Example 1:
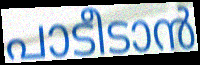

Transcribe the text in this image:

പാടീടാൻ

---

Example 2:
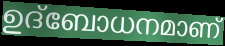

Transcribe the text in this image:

ഉദ്ബോധനമാണ്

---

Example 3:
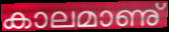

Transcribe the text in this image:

കാലമാണു്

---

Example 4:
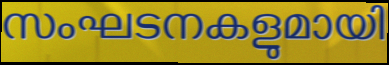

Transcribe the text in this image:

സംഘടനകളുമായി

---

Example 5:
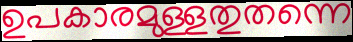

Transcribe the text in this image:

ഉപകാരമുള്ളതുതന്നെ